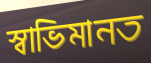
স্বাভিমানত